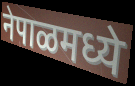
नेपाळमध्ये